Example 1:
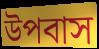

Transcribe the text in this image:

উপবাস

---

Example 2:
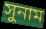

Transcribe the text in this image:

সুনাম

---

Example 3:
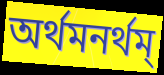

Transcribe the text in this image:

অর্থমনর্থম্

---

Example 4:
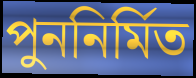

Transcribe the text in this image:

পুননির্মিত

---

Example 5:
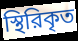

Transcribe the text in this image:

স্থিরিকৃত